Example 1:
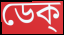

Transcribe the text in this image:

ডেক্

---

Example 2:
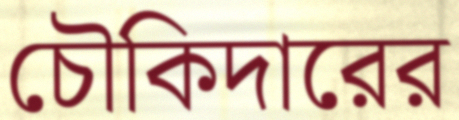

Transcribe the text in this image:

চৌকিদারের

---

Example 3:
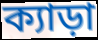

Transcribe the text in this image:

ক্যাড়া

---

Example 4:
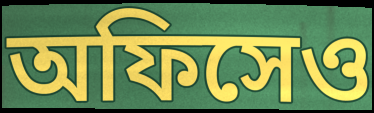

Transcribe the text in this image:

অফিসেও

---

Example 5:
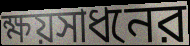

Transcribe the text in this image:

ক্ষয়সাধনের